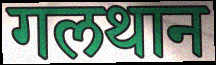
गलथान